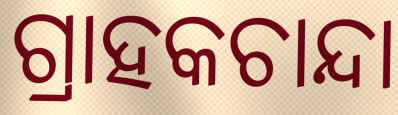
ଗ୍ରାହକଚାନ୍ଦା